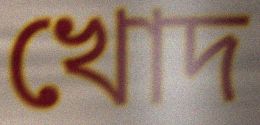
খোদ